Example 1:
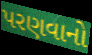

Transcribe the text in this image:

પરણવાનો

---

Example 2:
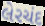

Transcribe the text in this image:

લેરચંદ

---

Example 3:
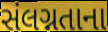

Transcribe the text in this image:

સંલગ્નતાના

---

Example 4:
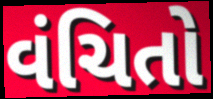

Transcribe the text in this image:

વંચિતો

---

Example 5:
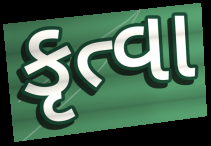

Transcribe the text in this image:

કૃત્વા